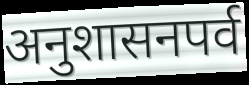
अनुशासनपर्व